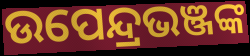
ଉପେନ୍ଦ୍ରଭଞ୍ଜଙ୍କ